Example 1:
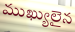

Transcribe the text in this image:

ముఖ్యులైన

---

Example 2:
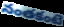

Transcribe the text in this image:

నంతకంటె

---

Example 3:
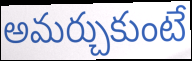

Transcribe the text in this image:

అమర్చుకుంటే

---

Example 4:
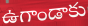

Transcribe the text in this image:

ఉగాండాకు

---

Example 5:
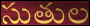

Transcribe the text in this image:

సుతుల